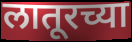
लातूरच्या